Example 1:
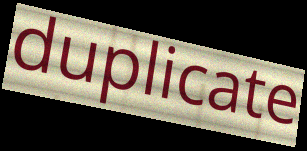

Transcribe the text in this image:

duplicate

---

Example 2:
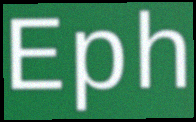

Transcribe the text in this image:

Eph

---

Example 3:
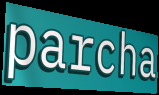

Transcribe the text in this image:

parcha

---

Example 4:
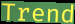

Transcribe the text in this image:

Trend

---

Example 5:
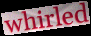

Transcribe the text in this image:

whirled